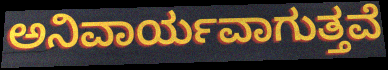
ಅನಿವಾರ್ಯವಾಗುತ್ತವೆ